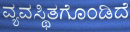
ವ್ಯವಸ್ಥಿತಗೊಂಡಿದೆ